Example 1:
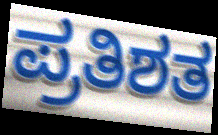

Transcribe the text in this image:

ಪ್ರತಿಶತ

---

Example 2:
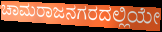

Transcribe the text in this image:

ಚಾಮರಾಜನಗರದಲ್ಲಿಯೇ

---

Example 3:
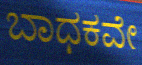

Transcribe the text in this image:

ಬಾಧಕವೇ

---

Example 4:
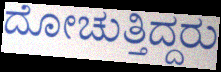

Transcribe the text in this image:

ದೋಚುತ್ತಿದ್ದರು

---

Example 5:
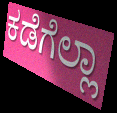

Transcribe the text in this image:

ಕಡೆಗೆಲ್ಲಾ